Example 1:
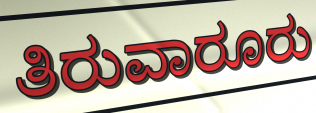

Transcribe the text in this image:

ತಿರುವಾರೂರು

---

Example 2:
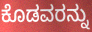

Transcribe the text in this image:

ಕೊಡವರನ್ನು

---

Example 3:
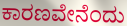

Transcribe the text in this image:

ಕಾರಣವೇನೆಂದು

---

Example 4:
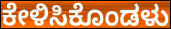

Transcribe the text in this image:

ಕೇಳಿಸಿಕೊಂಡಳು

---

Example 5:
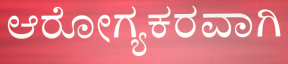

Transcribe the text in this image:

ಆರೋಗ್ಯಕರವಾಗಿ